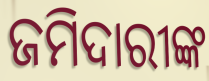
ଜମିଦାରୀଙ୍କ